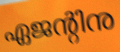
ഏജന്റിനു